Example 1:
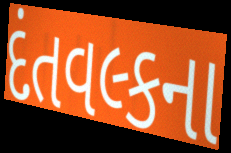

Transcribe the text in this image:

દંતવલ્કના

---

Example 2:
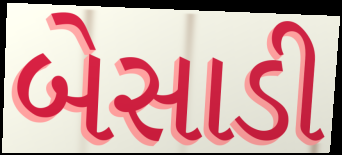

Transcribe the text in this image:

બેસાડી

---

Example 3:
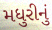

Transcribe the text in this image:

મધુરીનું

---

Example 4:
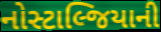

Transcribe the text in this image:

નોસ્ટાલ્જિયાની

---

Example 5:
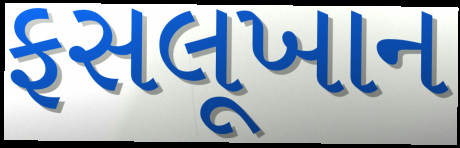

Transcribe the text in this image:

ફસલૂખાન